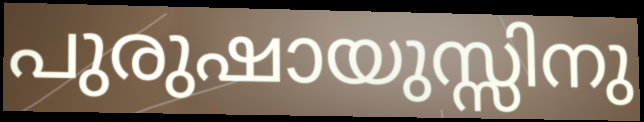
പുരുഷായുസ്സിനു